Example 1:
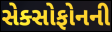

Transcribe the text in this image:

સેક્સોફોનની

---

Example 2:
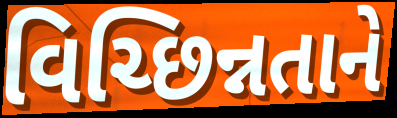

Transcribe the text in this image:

વિચ્છિન્નતાને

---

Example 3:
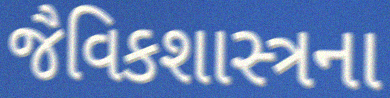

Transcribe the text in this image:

જૈવિકશાસ્ત્રના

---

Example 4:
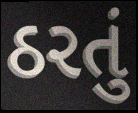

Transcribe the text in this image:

ઠરતું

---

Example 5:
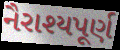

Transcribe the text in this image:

નૈરાશ્યપૂર્ણ